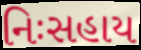
નિઃસહાય